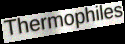
Thermophiles